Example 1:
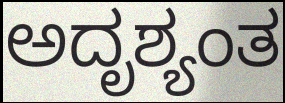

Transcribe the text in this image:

ಅದೃಶ್ಯಂತ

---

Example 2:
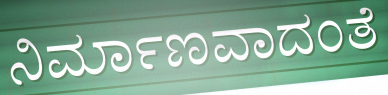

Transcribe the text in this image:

ನಿರ್ಮಾಣವಾದಂತೆ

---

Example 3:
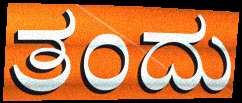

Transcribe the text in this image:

ತಂದು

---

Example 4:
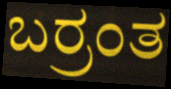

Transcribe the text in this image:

ಬರ್ರಂತ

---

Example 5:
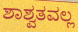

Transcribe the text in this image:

ಶಾಶ್ವತವಲ್ಲ